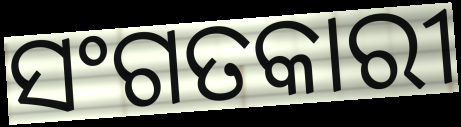
ସଂଗତକାରୀ